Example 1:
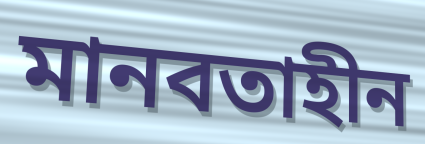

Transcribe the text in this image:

মানবতাহীন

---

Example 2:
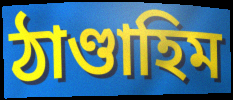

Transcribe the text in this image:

ঠাণ্ডাহিম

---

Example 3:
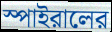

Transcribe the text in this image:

স্পাইরালের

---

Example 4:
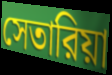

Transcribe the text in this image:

সেতারিয়া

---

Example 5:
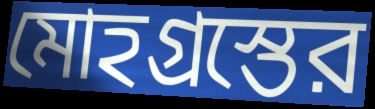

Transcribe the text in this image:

মোহগ্রস্তের